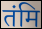
तंमि